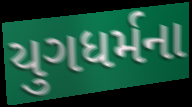
યુગધર્મના